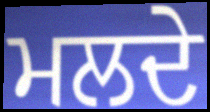
ਮਲਦੇ